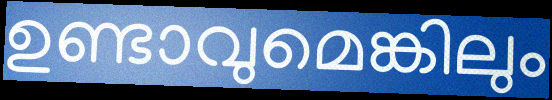
ഉണ്ടാവുമെങ്കിലും